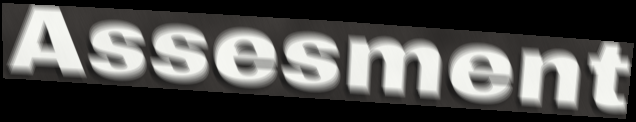
Assesment